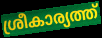
ശ്രീകാര്യത്ത്